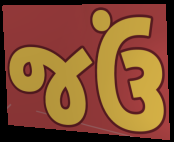
જઉં